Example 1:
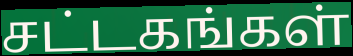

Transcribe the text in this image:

சட்டகங்கள்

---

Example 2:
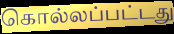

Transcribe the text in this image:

கொல்லப்பட்டது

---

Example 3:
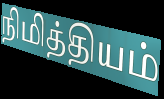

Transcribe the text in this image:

நிமித்தியம்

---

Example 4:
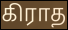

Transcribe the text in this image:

கிராத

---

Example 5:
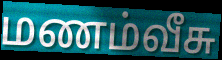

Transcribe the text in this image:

மணம்வீசு